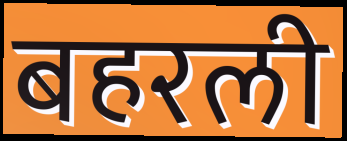
बहरली